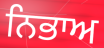
ਨਿਭਾਅ